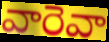
వారెవా